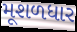
મૂશળધાર